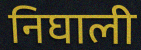
निघाली